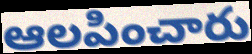
ఆలపించారు